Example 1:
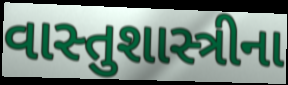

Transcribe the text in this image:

વાસ્તુશાસ્ત્રીના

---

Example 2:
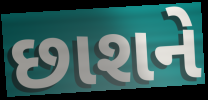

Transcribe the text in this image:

છાશને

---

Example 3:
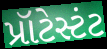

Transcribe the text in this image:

પ્રૉટેસ્ટંટ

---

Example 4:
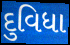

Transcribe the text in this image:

દુવિધા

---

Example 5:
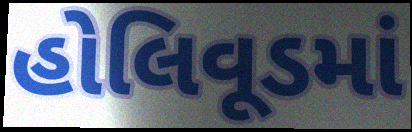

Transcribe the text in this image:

હોલિવૂડમાં